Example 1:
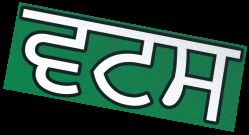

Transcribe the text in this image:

ਵਟਸ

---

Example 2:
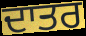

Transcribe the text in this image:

ਦਾਤਰ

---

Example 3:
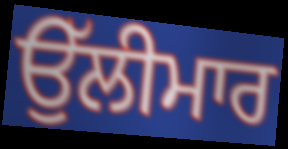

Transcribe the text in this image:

ਉੱਲੀਮਾਰ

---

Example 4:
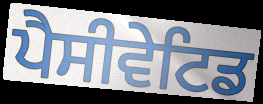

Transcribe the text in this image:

ਪੈਸੀਵੇਟਿਡ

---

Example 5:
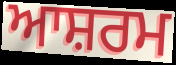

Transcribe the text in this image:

ਆਸ਼ਰਮ